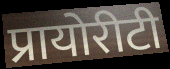
प्रायोरीटी